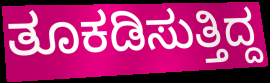
ತೂಕಡಿಸುತ್ತಿದ್ದ